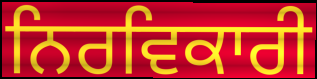
ਨਿਰਵਿਕਾਰੀ